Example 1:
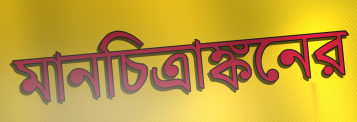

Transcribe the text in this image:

মানচিত্রাঙ্কনের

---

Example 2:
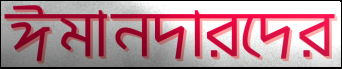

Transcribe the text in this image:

ঈমানদারদের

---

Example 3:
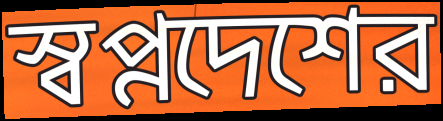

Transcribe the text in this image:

স্বপ্নদেশের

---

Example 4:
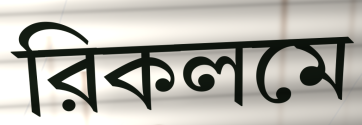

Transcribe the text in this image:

রিকলমে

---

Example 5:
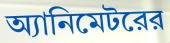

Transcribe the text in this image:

অ্যানিমেটরের